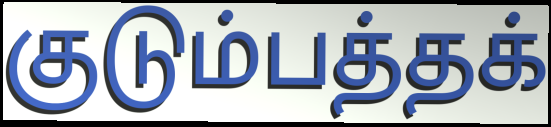
குடும்பத்தக்